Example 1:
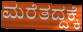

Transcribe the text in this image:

ಮರೆತದ್ದಕ್ಕೆ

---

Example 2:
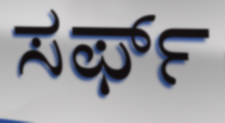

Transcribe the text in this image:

ಸರ್ಫ್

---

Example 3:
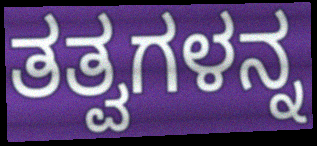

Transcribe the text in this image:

ತತ್ವಗಳನ್ನ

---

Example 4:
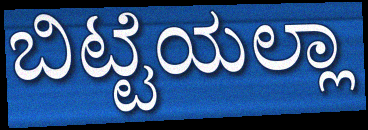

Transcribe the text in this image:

ಬಿಟ್ಟೆಯಲ್ಲಾ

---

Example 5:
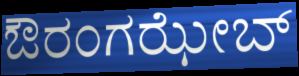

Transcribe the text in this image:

ಔರಂಗಝೇಬ್